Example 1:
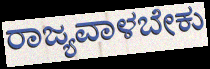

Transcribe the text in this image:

ರಾಜ್ಯವಾಳಬೇಕು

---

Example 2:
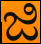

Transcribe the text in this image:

ಜಿ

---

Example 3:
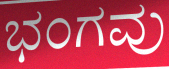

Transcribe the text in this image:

ಭಂಗವು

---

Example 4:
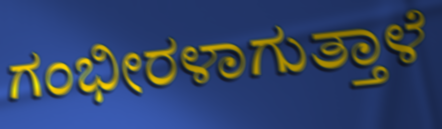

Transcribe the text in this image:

ಗಂಭೀರಳಾಗುತ್ತಾಳೆ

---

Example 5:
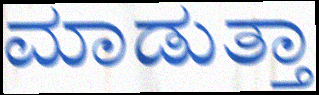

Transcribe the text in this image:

ಮಾಡುತ್ತಾ